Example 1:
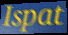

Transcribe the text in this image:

Ispat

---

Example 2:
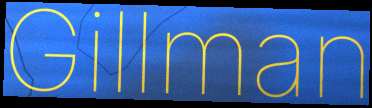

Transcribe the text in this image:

Gillman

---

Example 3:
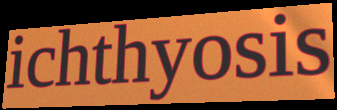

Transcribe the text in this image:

ichthyosis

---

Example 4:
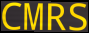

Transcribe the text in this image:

CMRS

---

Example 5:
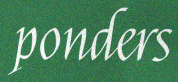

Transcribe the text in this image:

ponders